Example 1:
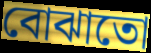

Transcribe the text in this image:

বোঝাতো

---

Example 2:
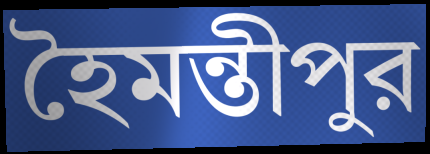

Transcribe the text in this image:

হৈমন্তীপুর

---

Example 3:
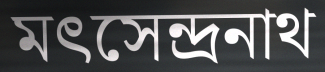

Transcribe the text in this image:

মৎসেন্দ্রনাথ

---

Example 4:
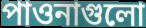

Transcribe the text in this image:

পাওনাগুলো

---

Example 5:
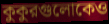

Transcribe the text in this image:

কুকুরগুলোকেও